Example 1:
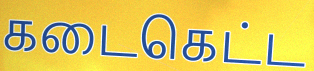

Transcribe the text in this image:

கடைகெட்ட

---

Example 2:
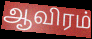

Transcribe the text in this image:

ஆவிரம்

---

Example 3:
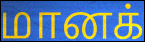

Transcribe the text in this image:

மானக்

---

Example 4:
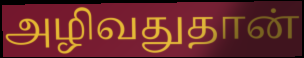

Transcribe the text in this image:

அழிவதுதான்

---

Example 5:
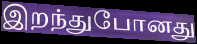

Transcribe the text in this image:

இறந்துபோனது